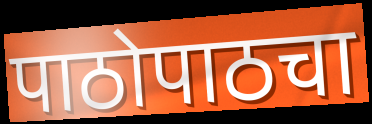
पाठोपाठचा